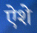
ऐशे